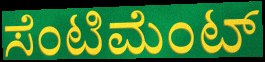
ಸೆಂಟಿಮೆಂಟ್